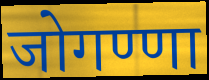
जोगण्णा